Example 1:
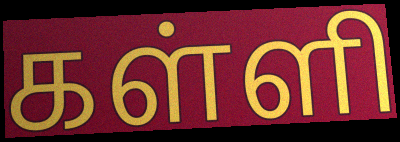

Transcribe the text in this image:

கள்ளி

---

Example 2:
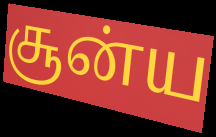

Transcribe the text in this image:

சூன்ய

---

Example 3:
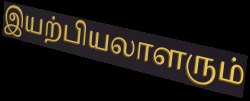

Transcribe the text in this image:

இயற்பியலாளரும்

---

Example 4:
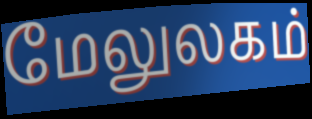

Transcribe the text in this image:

மேலுலகம்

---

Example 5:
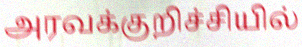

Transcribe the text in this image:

அரவக்குறிச்சியில்